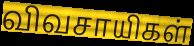
விவசாயிகள்